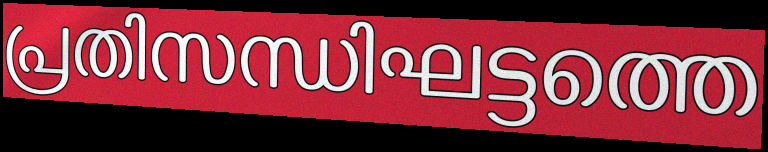
പ്രതിസന്ധിഘട്ടത്തെ